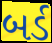
બર્ડ